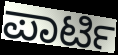
ಪಾರ್ಟಿ